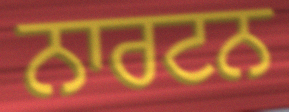
ਨਾਰਟਨ